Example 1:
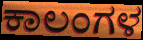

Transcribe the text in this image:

ಕಾಲಂಗಳ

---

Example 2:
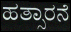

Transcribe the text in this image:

ಹತ್ಸಾರನೆ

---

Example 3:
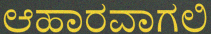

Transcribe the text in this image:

ಆಹಾರವಾಗಲಿ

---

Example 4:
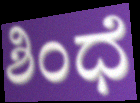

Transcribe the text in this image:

ಶಿಂಧೆ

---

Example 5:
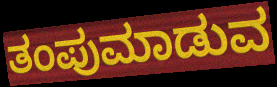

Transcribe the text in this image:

ತಂಪುಮಾಡುವ